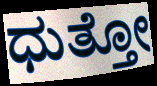
ಧುತ್ತೋ